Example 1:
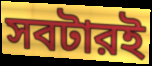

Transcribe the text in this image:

সবটারই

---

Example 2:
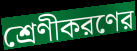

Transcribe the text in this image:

শ্রেণীকরণের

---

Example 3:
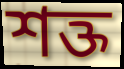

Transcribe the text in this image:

শক্ত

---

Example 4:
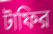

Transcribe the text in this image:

টাফির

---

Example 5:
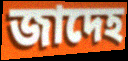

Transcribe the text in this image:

জাদেহ